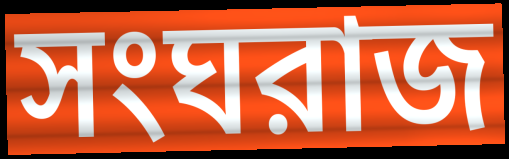
সংঘরাজ